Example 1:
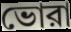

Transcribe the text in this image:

ভোরা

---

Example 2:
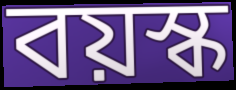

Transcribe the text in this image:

বয়স্ক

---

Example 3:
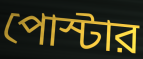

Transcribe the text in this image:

পোস্টার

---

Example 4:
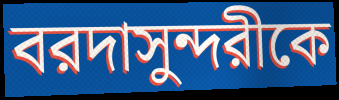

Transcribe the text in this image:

বরদাসুন্দরীকে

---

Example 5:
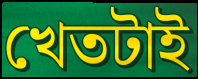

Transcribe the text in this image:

খেতটাই